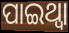
ପାଇଥ୍ବା